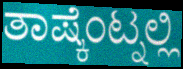
ತಾಷ್ಕೆಂಟ್ನಲ್ಲಿ